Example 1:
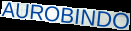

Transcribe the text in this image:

AUROBINDO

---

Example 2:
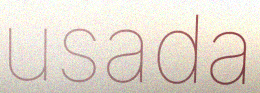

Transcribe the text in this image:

usada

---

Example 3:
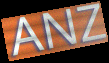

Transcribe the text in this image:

ANZ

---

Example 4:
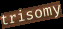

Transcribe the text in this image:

trisomy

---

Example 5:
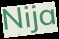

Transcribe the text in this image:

Nija